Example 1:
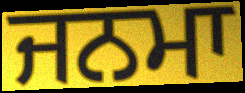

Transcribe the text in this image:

ਜਨਮਾ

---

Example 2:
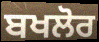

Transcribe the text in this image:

ਬਖਲੋਰ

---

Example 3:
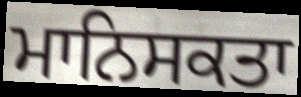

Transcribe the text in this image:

ਮਾਨਿਸਕਤਾ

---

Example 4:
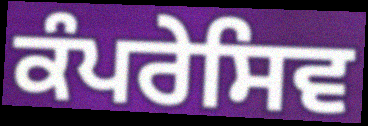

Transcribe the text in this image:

ਕੰਪਰੇਸਿਵ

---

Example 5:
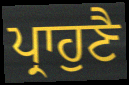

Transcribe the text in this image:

ਪ੍ਰਾਹੁਣੈ